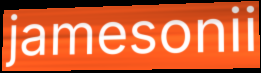
jamesonii